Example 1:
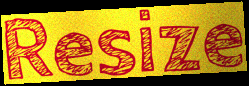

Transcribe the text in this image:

Resize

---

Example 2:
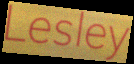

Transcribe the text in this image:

Lesley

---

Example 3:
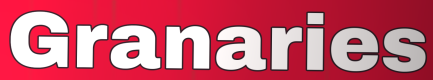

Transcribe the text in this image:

Granaries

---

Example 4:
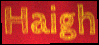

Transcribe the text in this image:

Haigh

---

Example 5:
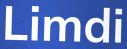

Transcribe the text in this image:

Limdi